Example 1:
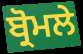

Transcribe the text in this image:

ਬ੍ਰੋਮਲੇ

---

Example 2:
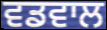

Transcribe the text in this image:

ਵਡਵਾਲ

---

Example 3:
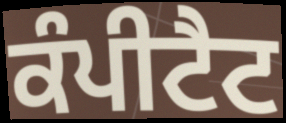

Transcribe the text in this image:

ਕੰਪੀਟੈਟ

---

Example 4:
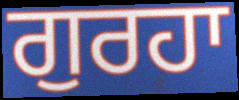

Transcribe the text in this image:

ਗੁਰਹਾ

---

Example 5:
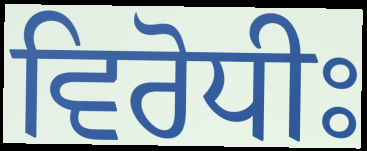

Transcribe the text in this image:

ਵਿਰੋਧੀਃ